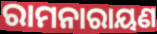
ରାମନାରାୟଣ